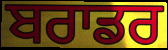
ਬਰਾਡਰ